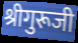
श्रीगुरूजी